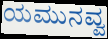
ಯಮುನವ್ವ